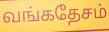
வங்கதேசம்